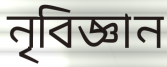
নৃবিজ্ঞান